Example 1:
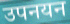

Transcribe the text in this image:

उपनयन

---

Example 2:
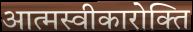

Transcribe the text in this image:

आत्मस्वीकारोक्ति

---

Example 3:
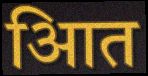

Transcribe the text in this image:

आित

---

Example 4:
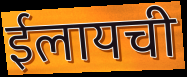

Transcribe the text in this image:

ईलायची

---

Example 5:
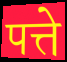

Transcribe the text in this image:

पत्ते